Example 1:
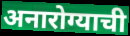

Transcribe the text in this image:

अनारोग्याची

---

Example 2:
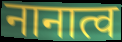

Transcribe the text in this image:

नानात्व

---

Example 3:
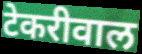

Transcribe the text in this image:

टेकरीवाल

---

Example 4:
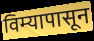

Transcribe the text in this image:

विम्यापासून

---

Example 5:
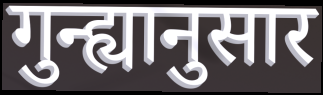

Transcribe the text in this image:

गुन्ह्यानुसार